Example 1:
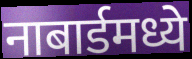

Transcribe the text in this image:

नाबार्डमध्ये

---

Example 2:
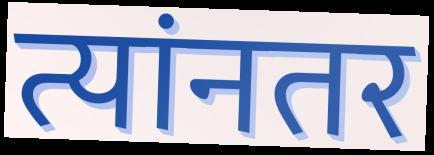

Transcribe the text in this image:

त्यांनतर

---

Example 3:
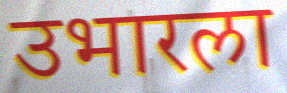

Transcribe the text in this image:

उभारला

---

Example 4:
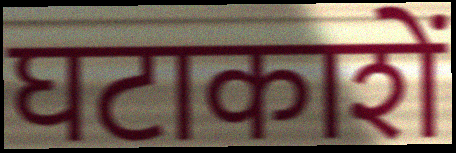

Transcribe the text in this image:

घटाकाशें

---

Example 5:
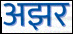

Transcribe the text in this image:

अझर